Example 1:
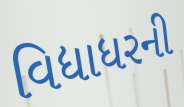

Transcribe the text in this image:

વિદ્યાધરની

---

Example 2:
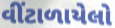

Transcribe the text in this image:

વીંટાળાયેલો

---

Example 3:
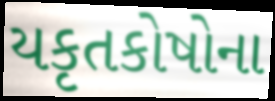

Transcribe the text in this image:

યકૃતકોષોના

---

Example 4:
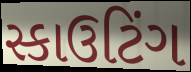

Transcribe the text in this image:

સ્કાઉટિંગ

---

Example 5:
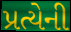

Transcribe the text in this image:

પ્રત્યેની